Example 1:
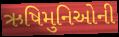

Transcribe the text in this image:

ઋષિમુનિઓની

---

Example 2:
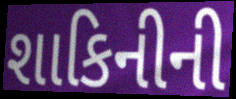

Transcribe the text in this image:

શાકિનીની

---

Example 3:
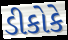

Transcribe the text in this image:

ડીકોકે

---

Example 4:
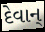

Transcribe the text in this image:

દેવાન્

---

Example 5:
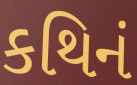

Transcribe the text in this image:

કથિનં